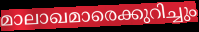
മാലാഖമാരെക്കുറിച്ചും